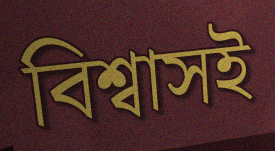
বিশ্বাসই